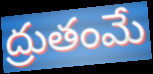
ద్రుతంమే